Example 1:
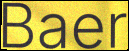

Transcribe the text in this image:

Baer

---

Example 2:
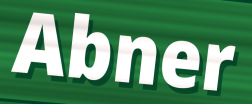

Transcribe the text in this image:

Abner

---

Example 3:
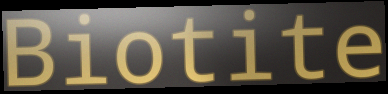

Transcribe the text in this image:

Biotite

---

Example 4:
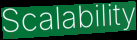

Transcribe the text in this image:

Scalability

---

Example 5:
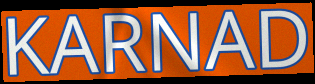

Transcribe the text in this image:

KARNAD